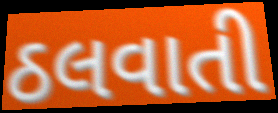
ઠલવાતી